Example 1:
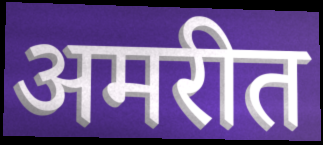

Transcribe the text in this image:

अमरीत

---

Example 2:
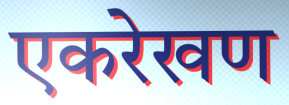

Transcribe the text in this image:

एकरेखण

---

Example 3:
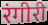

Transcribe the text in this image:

रंगीरी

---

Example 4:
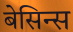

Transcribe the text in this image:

बेसिन्स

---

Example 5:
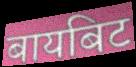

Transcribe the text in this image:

बायबिट